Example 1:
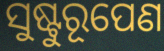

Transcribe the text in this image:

ସୁଷ୍ଟୁରୂପେଣ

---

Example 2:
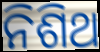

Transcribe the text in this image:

ନିଶିଥ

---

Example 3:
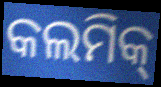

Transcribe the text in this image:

କଲମିକ୍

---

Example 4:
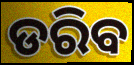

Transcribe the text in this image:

ଡରିବ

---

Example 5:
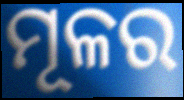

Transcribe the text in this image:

ମୂଳର